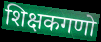
शिक्षकगणो